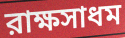
রাক্ষসাধম